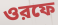
ওরফে